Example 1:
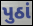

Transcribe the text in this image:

પુઠાં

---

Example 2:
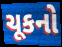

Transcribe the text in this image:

ચૂકનો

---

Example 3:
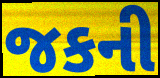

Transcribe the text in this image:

જકની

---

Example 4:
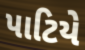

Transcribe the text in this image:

પાટિયે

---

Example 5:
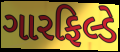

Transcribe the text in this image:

ગારફિલ્ડે